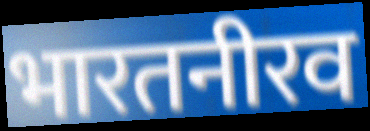
भारतनीरव